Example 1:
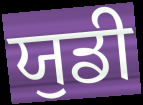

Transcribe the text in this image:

ਯੁਡੀ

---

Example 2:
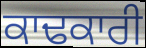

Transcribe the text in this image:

ਕਾਢਕਾਰੀ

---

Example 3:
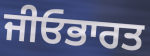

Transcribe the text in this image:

ਜੀਓਭਾਰਤ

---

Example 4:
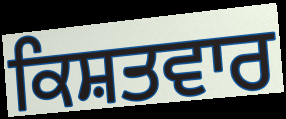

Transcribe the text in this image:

ਕਿਸ਼ਤਵਾਰ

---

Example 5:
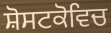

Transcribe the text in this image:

ਸ਼ੋਸਟਕੋਵਿਚ